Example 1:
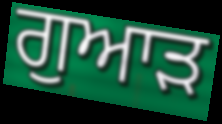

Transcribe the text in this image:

ਗੁਆੜ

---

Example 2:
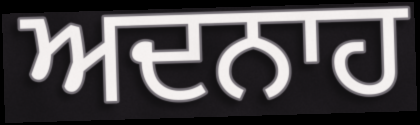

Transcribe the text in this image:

ਅਦਨਾਹ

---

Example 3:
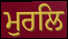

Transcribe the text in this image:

ਮੁਰਲਿ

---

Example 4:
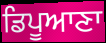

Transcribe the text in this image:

ਡਿਪੂਆਣਾ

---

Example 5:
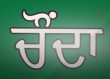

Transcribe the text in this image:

ਚੌਂਦਾ